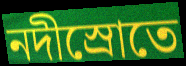
নদীস্রোতে